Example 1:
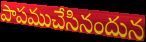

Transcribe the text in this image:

పాపముచేసినందున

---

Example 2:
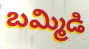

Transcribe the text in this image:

బమ్మిడి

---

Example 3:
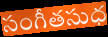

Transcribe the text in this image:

సంగీతసుధ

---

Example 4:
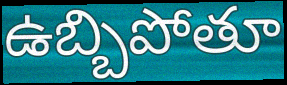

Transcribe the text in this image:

ఉబ్బిపోతూ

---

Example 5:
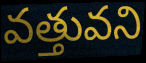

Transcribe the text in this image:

వత్తువని